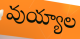
వుయ్యాల